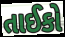
તાઈકો